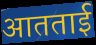
आतताई